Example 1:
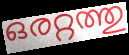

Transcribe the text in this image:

ഒരറ്റത്തു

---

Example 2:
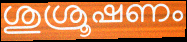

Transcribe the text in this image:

ശുശ്രൂഷണം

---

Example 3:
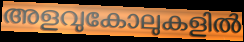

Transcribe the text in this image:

അളവുകോലുകളിൽ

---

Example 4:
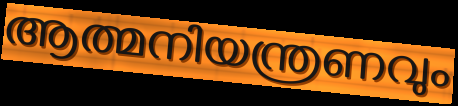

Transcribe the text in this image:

ആത്മനിയന്ത്രണവും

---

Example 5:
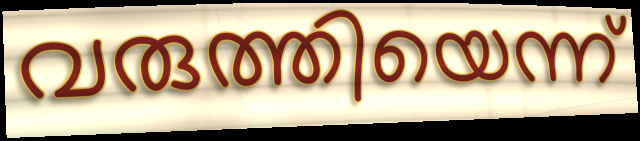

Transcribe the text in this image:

വരുത്തിയെന്ന്